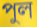
পুল